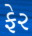
ફેર